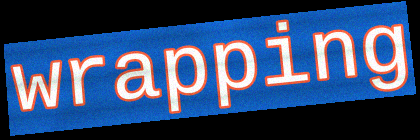
wrapping